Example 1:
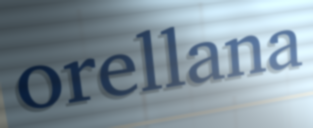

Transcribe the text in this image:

orellana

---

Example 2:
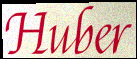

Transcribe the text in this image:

Huber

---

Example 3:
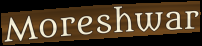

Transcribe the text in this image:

Moreshwar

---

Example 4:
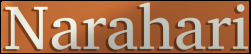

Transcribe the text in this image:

Narahari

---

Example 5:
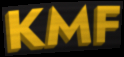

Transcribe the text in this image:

KMF